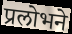
प्रलोभने